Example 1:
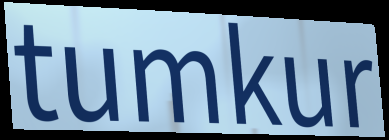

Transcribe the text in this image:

tumkur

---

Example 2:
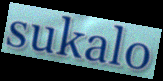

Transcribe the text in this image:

sukalo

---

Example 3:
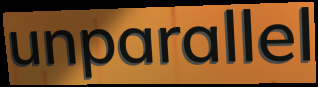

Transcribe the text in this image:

unparallel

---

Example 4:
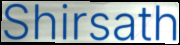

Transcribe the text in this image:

Shirsath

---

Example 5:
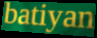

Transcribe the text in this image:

batiyan